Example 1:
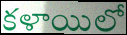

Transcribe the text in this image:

కళాయిలో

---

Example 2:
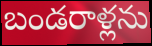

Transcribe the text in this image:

బండరాళ్లను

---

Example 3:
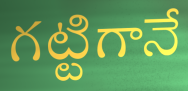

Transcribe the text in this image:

గట్టిగానే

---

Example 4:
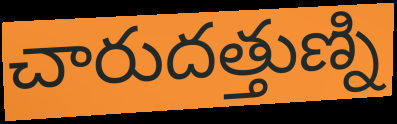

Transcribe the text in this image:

చారుదత్తుణ్ని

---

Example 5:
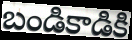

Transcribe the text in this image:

బండికాడికి